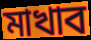
মাখাব